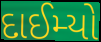
દાઈમ્યો